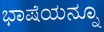
ಭಾಷೆಯನ್ನೂ